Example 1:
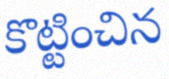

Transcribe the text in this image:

కొట్టించిన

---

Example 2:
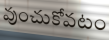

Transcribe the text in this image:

వుంచుకోవటం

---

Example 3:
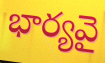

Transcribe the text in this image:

భార్యవై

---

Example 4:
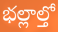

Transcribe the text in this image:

భల్లాల్తో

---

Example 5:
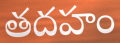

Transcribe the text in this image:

తదహం